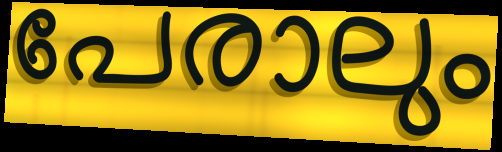
പേരാലും